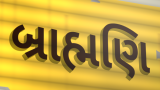
બ્રાહ્મણિ